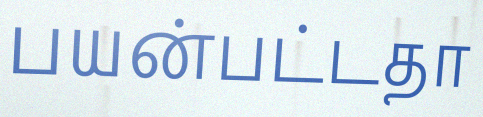
பயன்பட்டதா